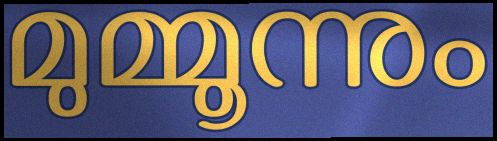
മുമ്മൂന്നും